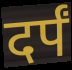
दर्पं